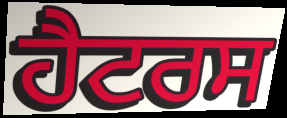
ਹੈਟਰਸ